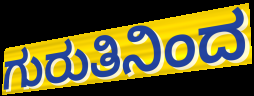
ಗುರುತಿನಿಂದ